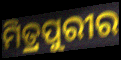
ମିତ୍ରପୁରୀର